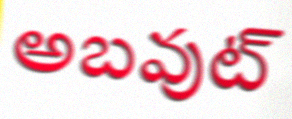
అబవుట్